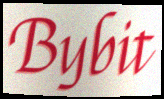
Bybit